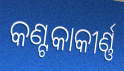
କଣ୍ଟକାକୀର୍ଣ୍ଣ